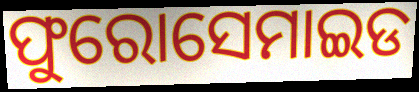
ଫୁରୋସେମାଇଡ